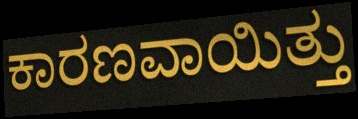
ಕಾರಣವಾಯಿತ್ತು